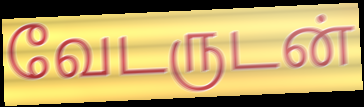
வேடருடன்